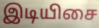
இடியிசை